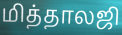
மித்தாலஜி